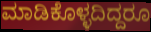
ಮಾಡಿಕೊಳ್ಳದಿದ್ದರೂ